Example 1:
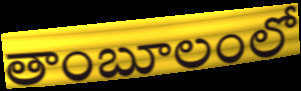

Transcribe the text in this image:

తాంబూలంలో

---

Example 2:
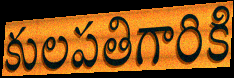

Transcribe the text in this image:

కులపతిగారికి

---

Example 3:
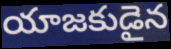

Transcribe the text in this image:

యాజకుడైన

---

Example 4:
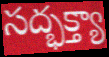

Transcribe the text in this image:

సద్భక్త్యా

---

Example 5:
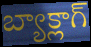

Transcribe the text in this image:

బ్యాక్లాగ్